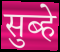
सुब्हे